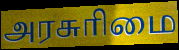
அரசுரிமை